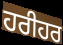
ਹਰੀਹਰ